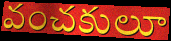
వంచకులూ